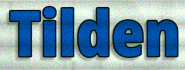
Tilden